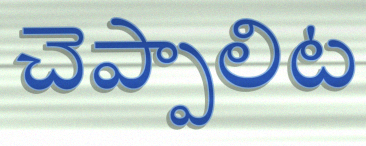
చెప్పాలిట